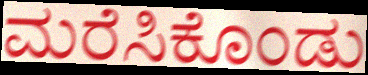
ಮರೆಸಿಕೊಂಡು